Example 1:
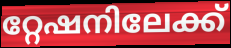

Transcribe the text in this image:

റ്റേഷനിലേക്ക്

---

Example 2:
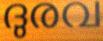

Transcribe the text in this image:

ദുരവ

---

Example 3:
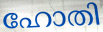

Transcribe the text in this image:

ഹോതി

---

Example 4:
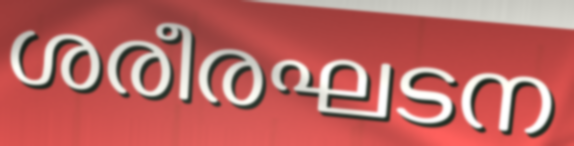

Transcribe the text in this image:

ശരീരഘടന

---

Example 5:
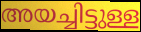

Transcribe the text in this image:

അയച്ചിട്ടുള്ള